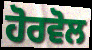
ਹੋਰਵੋਲ